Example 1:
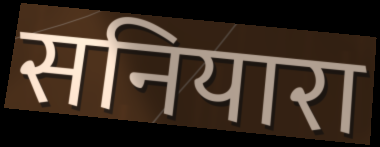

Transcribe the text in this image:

सनियारा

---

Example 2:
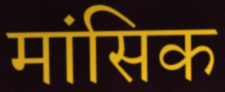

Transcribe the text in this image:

मांसिक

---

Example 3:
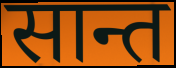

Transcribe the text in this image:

सान्त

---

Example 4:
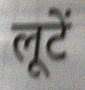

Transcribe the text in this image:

लूटें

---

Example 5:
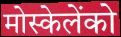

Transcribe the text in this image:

मोस्केलेंको